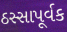
ઠસ્સાપૂર્વક